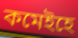
কমেইহে